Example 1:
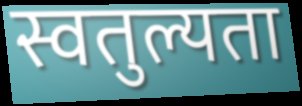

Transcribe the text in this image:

स्वतुल्यता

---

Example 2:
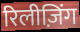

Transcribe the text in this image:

रिलीज़िंग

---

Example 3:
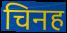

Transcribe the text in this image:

चिनह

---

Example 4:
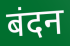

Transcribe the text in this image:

बंदन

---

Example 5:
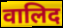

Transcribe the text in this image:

वालिद